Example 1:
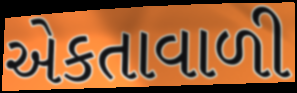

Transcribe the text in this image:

એકતાવાળી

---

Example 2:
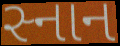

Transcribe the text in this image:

સ્નાન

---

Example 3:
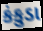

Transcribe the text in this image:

કંકુડા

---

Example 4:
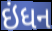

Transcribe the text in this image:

ઇંધન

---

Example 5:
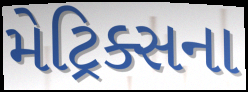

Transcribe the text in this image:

મેટ્રિક્સના